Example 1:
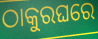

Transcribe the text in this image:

ଠାକୁରଘରେ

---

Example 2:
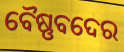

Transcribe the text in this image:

ବୈଷ୍ଣବଦେର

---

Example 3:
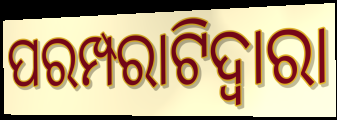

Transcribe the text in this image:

ପରମ୍ପରାଟିଦ୍ୱାରା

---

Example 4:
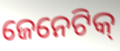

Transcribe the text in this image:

ଜେନେଟିକ୍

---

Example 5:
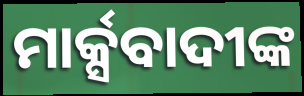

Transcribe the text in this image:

ମାର୍କ୍ସବାଦୀଙ୍କ